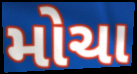
મોચા